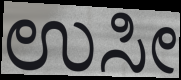
ಉಸೀ